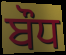
ਬੌਧ